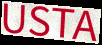
USTA